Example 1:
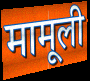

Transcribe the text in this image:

मामूली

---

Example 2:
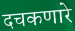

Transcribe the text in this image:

दचकणारे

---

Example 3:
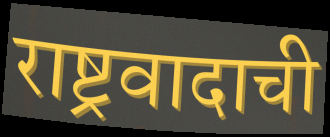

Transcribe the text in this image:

राष्ट्रवादाची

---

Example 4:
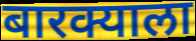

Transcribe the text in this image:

बारक्याला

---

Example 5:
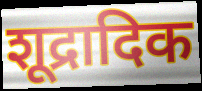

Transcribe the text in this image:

शूद्रादिक